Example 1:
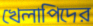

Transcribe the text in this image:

খেলাপিদের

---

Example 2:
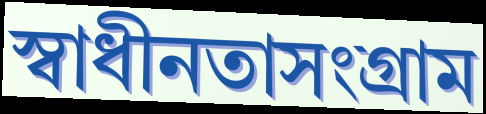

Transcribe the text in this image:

স্বাধীনতাসংগ্রাম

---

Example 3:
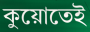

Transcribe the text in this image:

কুয়োতেই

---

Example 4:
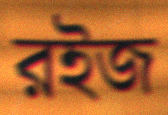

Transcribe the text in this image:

রইজ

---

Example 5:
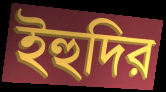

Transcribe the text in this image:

ইহুদির